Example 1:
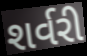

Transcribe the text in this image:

શર્વરી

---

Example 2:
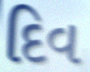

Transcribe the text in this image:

દિવ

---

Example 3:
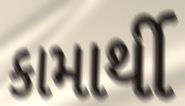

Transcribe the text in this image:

કામાર્થી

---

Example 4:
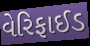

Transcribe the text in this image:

વેરિફાઈડ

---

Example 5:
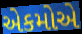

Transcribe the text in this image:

એકમોએ